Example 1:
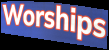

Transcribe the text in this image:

Worships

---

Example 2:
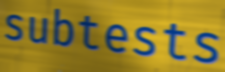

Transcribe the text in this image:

subtests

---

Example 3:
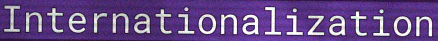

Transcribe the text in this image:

Internationalization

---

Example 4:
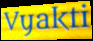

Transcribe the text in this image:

Vyakti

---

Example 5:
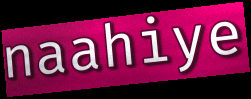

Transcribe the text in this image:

naahiye